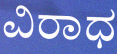
ವಿರಾಧ